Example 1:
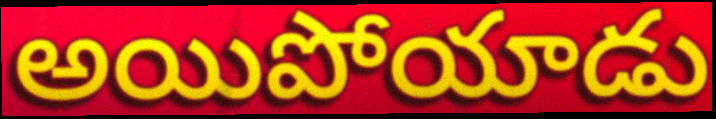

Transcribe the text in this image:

అయిపోయాడు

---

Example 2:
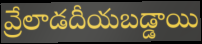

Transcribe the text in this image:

వ్రేలాడదీయబడ్డాయి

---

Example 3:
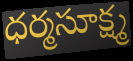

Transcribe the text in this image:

ధర్మసూక్ష్మ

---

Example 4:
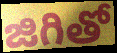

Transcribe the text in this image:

జిగితో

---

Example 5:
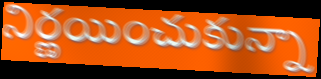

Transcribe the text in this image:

నిర్ణయించుకున్నా